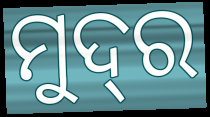
ମୁଦ୍‌ର